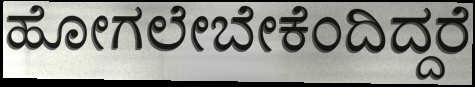
ಹೋಗಲೇಬೇಕೆಂದಿದ್ದರೆ